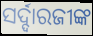
ସର୍ଦ୍ଦାରଜୀଙ୍କ